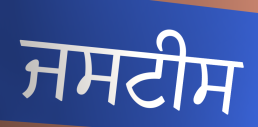
ਜਸਟੀਸ